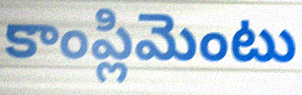
కాంప్లిమెంటు